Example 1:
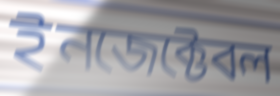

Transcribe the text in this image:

ইনজেক্টেবল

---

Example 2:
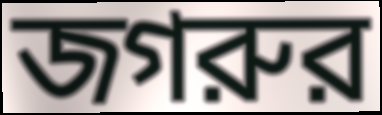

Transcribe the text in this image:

জগরুর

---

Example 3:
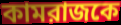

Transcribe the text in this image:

কামরাজকে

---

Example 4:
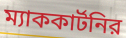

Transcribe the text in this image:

ম্যাককার্টনির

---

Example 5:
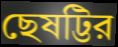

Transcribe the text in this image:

ছেষট্টির